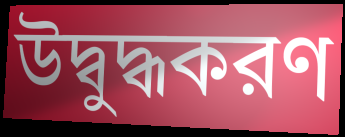
উদ্বুদ্ধকরণ